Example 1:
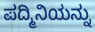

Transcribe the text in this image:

ಪದ್ಮಿನಿಯನ್ನು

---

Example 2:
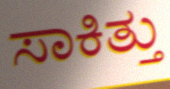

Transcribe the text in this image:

ಸಾಕಿತ್ತು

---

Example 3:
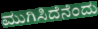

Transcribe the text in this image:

ಮುಗಿಸಿದೆನೆಂದು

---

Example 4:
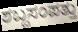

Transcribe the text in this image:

ಶಬ್ದಸಂಪತ್ತು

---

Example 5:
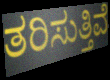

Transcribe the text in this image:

ತರಿಸುತ್ತಿವೆ